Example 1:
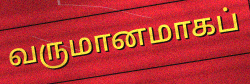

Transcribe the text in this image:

வருமானமாகப்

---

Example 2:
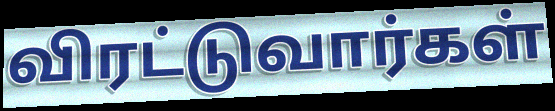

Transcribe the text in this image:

விரட்டுவார்கள்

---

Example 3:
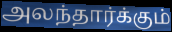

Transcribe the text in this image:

அலந்தார்க்கும்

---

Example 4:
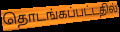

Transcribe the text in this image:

தொடங்கப்பட்டதில்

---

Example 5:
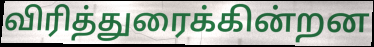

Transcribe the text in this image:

விரித்துரைக்கின்றன